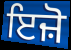
ਇਜ਼ੋ